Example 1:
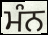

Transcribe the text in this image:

ਮੰਨ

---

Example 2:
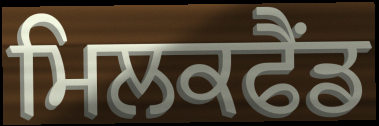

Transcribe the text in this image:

ਮਿਲਕਫੈਂਡ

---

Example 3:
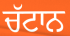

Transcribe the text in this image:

ਚੱਟਾਨ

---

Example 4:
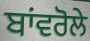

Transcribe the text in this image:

ਬਾਂਵਰੋਲੇ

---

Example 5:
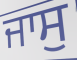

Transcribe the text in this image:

ਜਾਸੁ